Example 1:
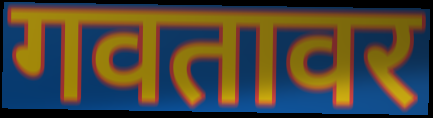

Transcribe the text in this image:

गवतावर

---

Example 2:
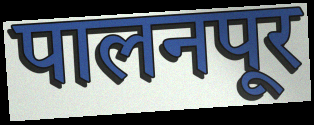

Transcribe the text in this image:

पालनपूर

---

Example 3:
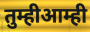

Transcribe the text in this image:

तुम्हीआम्ही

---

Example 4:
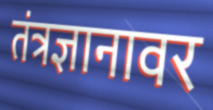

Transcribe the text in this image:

तंत्रज्ञानावर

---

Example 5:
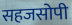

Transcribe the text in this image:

सहजसोपी